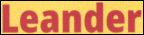
Leander